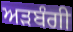
ਅੜਬੰਗੀ